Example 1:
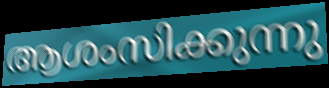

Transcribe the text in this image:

ആശംസിക്കുന്നു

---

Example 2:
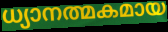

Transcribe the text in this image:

ധ്യാനത്മകമായ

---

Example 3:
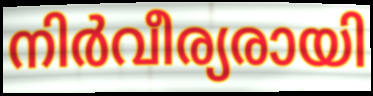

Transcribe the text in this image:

നിർവീര്യരായി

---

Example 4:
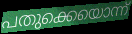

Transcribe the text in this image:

പതുക്കെയൊന്ന്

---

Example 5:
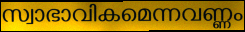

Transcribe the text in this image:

സ്വാഭാവികമെന്നവണ്ണം